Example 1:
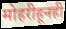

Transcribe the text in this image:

मोहरीहूनही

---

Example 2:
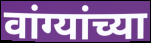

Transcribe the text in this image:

वांग्यांच्या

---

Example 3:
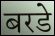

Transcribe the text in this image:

बरडे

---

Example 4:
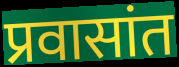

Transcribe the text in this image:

प्रवासांत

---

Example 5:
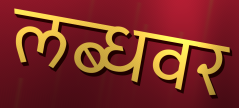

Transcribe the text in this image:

लब्धवर